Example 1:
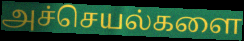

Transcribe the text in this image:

அச்செயல்களை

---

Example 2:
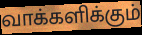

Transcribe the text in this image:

வாக்களிக்கும்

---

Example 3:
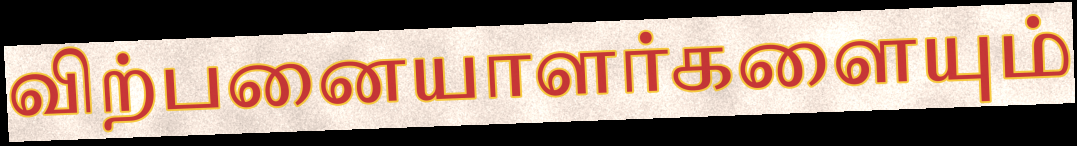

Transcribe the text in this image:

விற்பனையாளர்களையும்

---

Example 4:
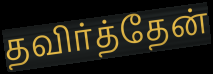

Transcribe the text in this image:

தவிர்த்தேன்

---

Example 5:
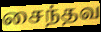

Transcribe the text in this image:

சைந்தவ